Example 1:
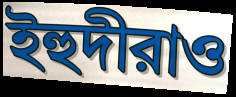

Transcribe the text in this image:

ইহুদীরাও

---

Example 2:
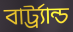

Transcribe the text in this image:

বার্ট্র্যান্ড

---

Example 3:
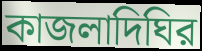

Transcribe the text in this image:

কাজলাদিঘির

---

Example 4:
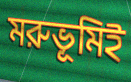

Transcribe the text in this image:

মরুভূমিই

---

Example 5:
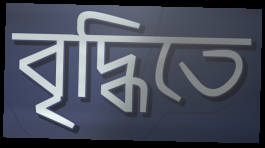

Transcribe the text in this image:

বৃদ্ধিতে